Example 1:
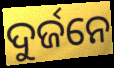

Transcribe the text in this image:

ଦୁର୍ଜନେ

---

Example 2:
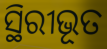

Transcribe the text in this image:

ସ୍ଥିରୀଭୂତ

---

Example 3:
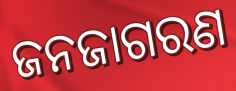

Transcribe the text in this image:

ଜନଜାଗରଣ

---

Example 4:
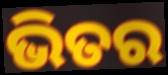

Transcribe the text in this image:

ଭିତର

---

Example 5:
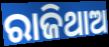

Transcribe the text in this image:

ରାଜିଥାଅ